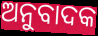
ଅନୁବାଦକ